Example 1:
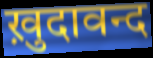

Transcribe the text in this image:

ख़ुदावन्द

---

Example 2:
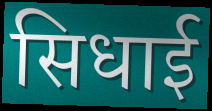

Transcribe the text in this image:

सिधाई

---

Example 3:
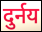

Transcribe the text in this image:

दुर्नय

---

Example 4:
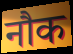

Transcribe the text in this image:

नौक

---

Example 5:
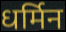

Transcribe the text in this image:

धर्मिन